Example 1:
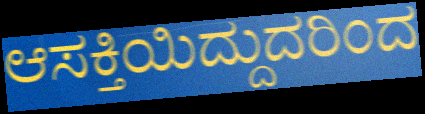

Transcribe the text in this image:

ಆಸಕ್ತಿಯಿದ್ದುದರಿಂದ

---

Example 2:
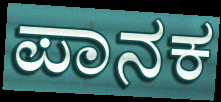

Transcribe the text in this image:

ಪಾನಕ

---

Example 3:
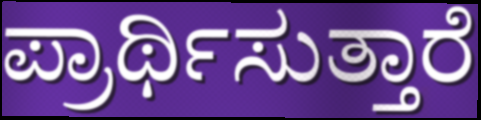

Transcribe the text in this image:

ಪ್ರಾರ್ಥಿಸುತ್ತಾರೆ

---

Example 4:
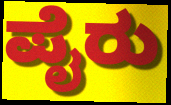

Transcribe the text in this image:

ಪೈರು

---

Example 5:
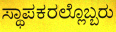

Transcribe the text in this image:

ಸ್ಥಾಪಕರಲ್ಲೊಬ್ಬರು